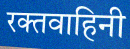
रक्तवाहिनी